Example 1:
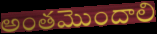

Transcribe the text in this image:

అంతమొందాలి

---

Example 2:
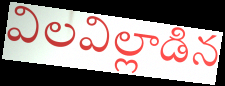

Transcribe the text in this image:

విలవిల్లాడిన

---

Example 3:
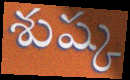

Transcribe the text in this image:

శుష్క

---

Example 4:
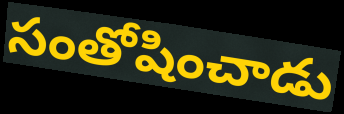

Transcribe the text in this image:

సంతోషించాడు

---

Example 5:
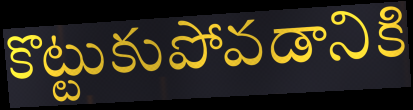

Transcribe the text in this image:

కొట్టుకుపోవడానికి